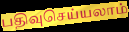
பதிவுசெய்யலாம்